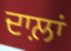
ਦਾਲ਼ਾਂ